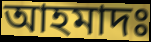
আহমাদঃ